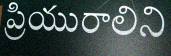
ప్రియురాలిని